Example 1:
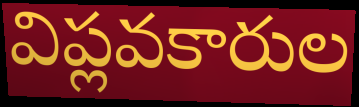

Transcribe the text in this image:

విప్లవకారుల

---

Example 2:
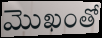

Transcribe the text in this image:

మొఖంతో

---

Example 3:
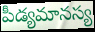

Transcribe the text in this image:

పీడ్యమానస్య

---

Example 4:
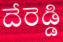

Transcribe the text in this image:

దేరెడ్డి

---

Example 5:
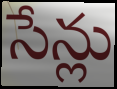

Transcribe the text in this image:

సేన్లు